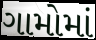
ગામોમાં